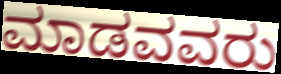
ಮಾಡವವರು